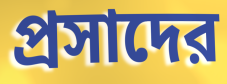
প্রসাদের